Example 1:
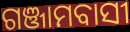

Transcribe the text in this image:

ଗଞ୍ଜାମବାସୀ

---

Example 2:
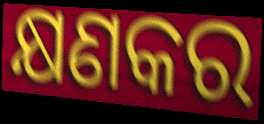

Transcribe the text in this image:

କ୍ଷଣକର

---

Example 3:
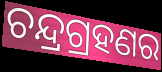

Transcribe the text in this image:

ଚନ୍ଦ୍ରଗ୍ରହଣର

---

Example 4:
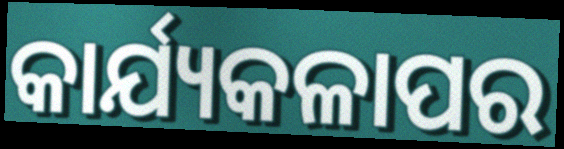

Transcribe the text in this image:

କାର୍ଯ୍ୟକଳାପର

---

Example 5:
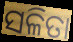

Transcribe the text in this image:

ସଳିତା